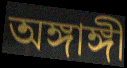
অঙ্গাঙ্গী